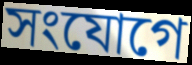
সংযোগে